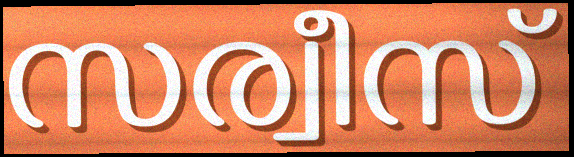
സര്വീസ്